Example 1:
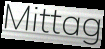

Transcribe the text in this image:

Mittag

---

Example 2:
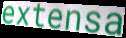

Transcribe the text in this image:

extensa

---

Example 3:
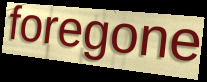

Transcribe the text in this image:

foregone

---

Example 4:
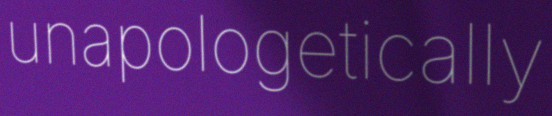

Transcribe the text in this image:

unapologetically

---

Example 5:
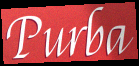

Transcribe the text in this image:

Purba